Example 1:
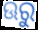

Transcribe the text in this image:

ଊରୁ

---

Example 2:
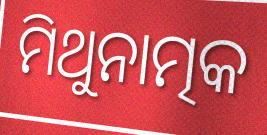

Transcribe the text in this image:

ମିଥୁନାତ୍ମକ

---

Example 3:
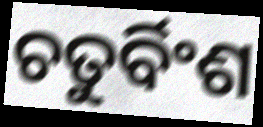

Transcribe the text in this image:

ଚତୁର୍ବିଂଶ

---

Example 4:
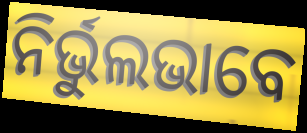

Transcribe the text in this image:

ନିର୍ଭୁଲଭାବେ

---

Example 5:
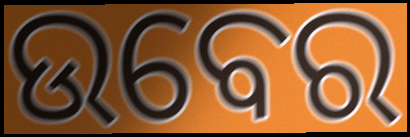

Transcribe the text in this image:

ଉବେର